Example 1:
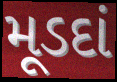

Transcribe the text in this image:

મૂડદાં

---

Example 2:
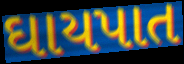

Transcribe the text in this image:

ઘાયપાત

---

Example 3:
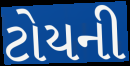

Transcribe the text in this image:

ટોયની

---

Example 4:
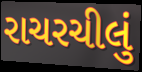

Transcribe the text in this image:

રાચરચીલું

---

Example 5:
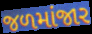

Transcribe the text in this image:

જળમાંજાર